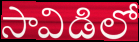
సావిడిలో